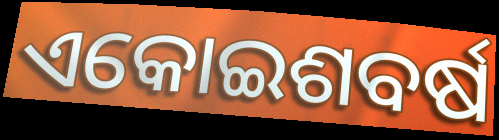
ଏକୋଇଶବର୍ଷ